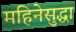
महिनेसुद्धा